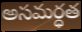
అసమర్ధత